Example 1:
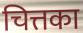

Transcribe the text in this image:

चित्तका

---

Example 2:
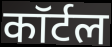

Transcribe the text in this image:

कॉर्टल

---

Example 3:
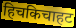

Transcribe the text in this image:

हिचकिचाहट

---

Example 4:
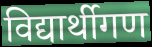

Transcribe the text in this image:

विद्यार्थीगण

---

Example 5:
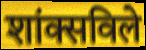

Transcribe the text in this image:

शांक्सविले